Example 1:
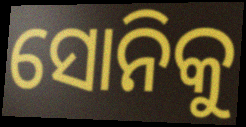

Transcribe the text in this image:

ସୋନିକୁ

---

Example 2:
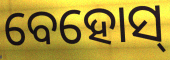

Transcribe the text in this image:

ବେହୋସ୍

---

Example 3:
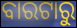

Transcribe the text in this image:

ବାରଟାରୁ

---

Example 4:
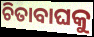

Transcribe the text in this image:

ଚିତାବାଘକୁ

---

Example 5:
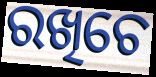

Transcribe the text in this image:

ରଖିଚେ